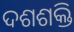
ଦଶଶକ୍ତି